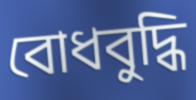
বোধবুদ্ধি